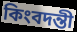
কিংবদন্তী